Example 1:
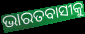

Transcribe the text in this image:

ଭାରତବାସୀକୁ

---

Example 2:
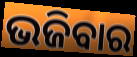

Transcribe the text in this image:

ଭଜିବାର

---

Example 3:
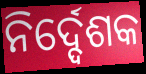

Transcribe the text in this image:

ନିର୍ଦ୍ଦେଶକ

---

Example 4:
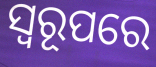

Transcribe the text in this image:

ସ୍ଵରୂପରେ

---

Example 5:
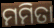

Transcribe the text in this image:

ମମିତା